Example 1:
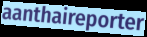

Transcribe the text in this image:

aanthaireporter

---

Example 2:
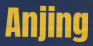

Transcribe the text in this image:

Anjing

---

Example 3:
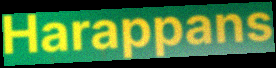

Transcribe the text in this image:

Harappans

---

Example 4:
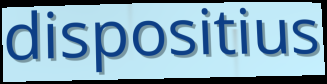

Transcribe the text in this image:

dispositius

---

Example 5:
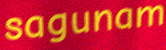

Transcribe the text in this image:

sagunam